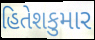
હિતેશકુમાર